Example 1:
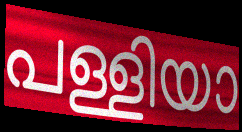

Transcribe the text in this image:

പള്ളിയാ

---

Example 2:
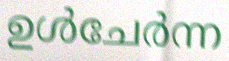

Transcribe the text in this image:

ഉൾചേർന്ന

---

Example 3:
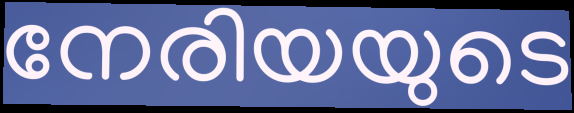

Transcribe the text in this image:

നേരിയയുടെ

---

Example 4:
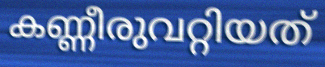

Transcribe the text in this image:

കണ്ണീരുവറ്റിയത്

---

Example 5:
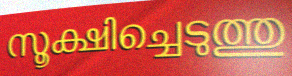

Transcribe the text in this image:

സൂക്ഷിച്ചെടുത്തു